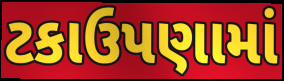
ટકાઉપણામાં